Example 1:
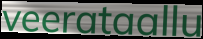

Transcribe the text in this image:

veerataallu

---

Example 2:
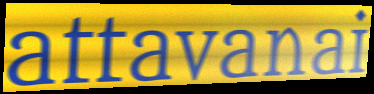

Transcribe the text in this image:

attavanai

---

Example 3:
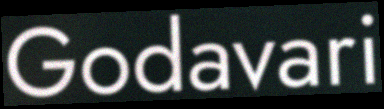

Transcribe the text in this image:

Godavari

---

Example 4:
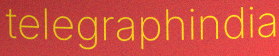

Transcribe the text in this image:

telegraphindia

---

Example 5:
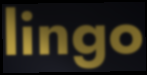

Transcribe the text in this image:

lingo